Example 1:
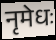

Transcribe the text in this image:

नृमेधः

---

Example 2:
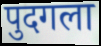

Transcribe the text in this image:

पुदगला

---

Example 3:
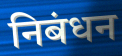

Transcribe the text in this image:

निबंधन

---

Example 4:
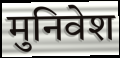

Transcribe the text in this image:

मुनिवेश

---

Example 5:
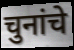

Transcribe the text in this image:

चुनांचे